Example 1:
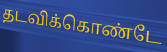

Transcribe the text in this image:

தடவிக்கொண்டே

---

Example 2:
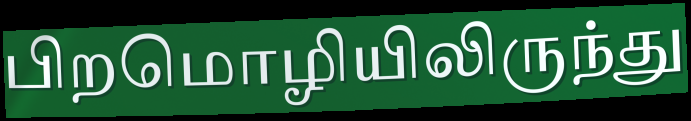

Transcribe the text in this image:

பிறமொழியிலிருந்து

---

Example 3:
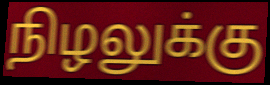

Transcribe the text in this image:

நிழலுக்கு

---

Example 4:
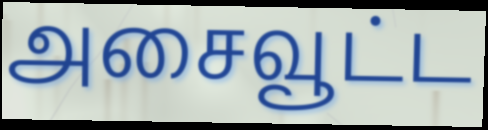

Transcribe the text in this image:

அசைவூட்ட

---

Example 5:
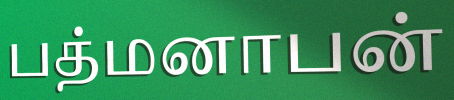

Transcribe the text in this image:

பத்மனாபன்